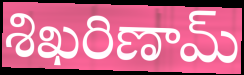
శిఖరిణామ్